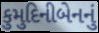
કુમુદિનીબેનનું